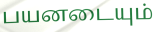
பயனடையும்